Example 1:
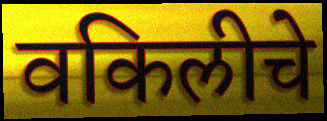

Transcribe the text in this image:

वकिलीचे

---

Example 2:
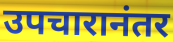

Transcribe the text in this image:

उपचारानंतर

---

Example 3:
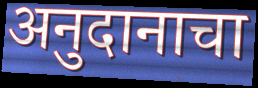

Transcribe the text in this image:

अनुदानाचा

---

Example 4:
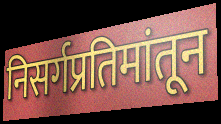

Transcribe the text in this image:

निसर्गप्रतिमांतून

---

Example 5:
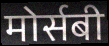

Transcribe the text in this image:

मोर्सबी